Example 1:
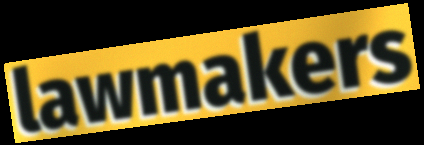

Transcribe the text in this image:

lawmakers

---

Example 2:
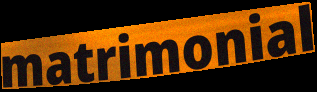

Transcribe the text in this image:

matrimonial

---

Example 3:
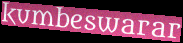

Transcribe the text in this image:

kumbeswarar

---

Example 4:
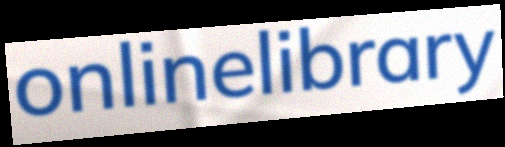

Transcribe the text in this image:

onlinelibrary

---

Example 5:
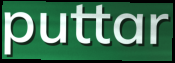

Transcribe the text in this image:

puttar